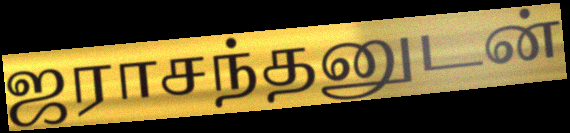
ஜராசந்தனுடன்